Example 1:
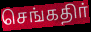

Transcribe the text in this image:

செங்கதிர்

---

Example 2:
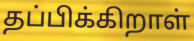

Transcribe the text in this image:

தப்பிக்கிறாள்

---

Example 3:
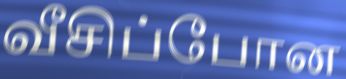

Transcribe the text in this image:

வீசிப்போன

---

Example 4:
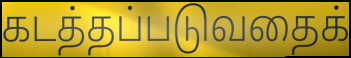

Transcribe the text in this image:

கடத்தப்படுவதைக்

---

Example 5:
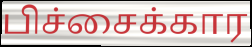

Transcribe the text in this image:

பிச்சைக்கார